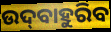
ଉଦ୍‌ବାହୁରିବ